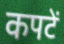
कपटें